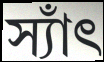
স্যাঁৎ